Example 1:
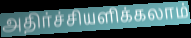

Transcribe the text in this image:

அதிர்ச்சியளிக்கலாம்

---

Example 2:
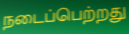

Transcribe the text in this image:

நடைப்பெற்றது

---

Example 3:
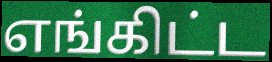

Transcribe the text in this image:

எங்கிட்ட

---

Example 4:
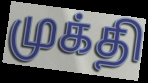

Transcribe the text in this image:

முக்தி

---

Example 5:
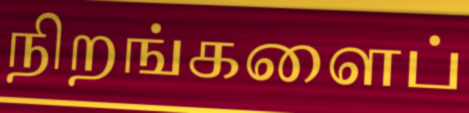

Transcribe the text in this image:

நிறங்களைப்